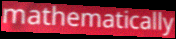
mathematically